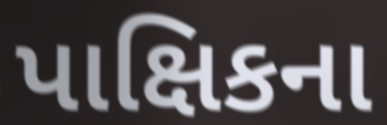
પાક્ષિકના